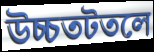
উচ্চতটতলে